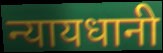
न्यायधानी